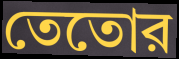
তেতোর